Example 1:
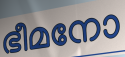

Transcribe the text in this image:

ഭീമനോ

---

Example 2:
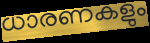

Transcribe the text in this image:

ധാരണകളും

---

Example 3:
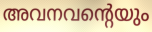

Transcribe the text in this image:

അവനവന്റെയും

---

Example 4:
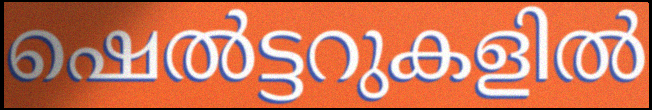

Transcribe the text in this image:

ഷെൽട്ടറുകളിൽ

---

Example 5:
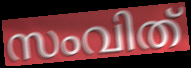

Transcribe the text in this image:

സംവിത്